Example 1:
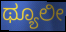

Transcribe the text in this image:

ಥ್ಯೂಲೀ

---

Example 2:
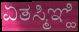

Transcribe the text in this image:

ಏತಸ್ಮಿಞ್ಹಿ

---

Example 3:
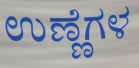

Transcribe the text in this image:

ಉಣ್ಣೆಗಳ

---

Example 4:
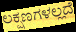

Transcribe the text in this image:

ಲಕ್ಷಣಗಳಲ್ಲದೆ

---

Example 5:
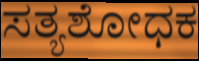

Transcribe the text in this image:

ಸತ್ಯಶೋಧಕ